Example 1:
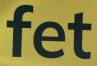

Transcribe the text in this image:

fet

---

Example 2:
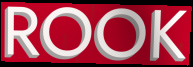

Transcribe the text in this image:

ROOK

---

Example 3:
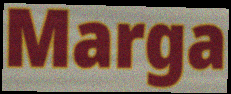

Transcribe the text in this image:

Marga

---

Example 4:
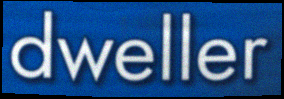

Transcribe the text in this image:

dweller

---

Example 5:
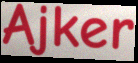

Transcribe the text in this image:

Ajker